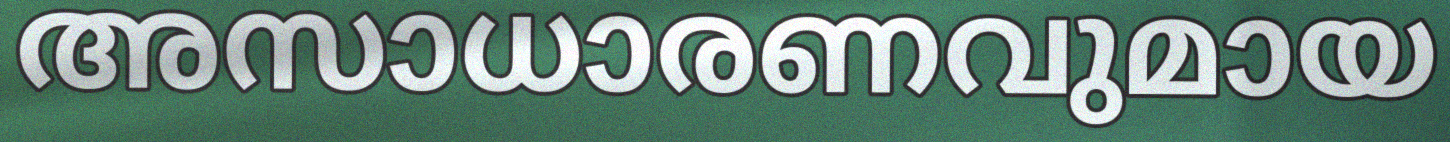
അസാധാരണവുമായ